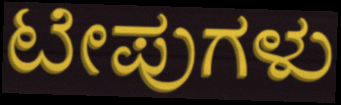
ಟೇಪುಗಳು